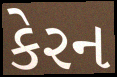
કેરન